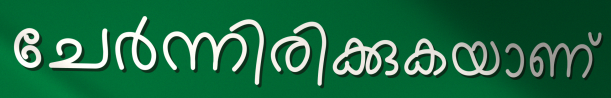
ചേർന്നിരിക്കുകയാണ്